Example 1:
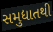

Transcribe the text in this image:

સમુદ્યાતથી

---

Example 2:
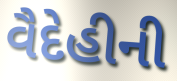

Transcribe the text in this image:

વૈદેહીની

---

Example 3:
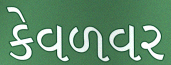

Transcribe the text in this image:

કેવળવર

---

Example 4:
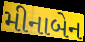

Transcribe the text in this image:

મીનાબેન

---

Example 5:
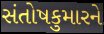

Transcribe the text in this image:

સંતોષકુમારને